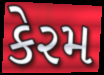
કેરમ